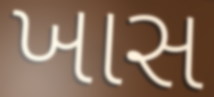
ખાસ